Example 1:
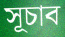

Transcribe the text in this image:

সূচাব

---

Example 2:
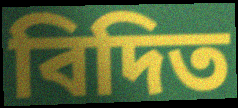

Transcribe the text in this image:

বিদিত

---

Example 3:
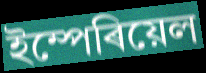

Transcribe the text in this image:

ইম্পেৰিয়েল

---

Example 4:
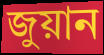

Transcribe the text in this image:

জুয়ান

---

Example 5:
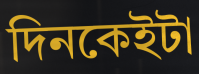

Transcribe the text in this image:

দিনকেইটা